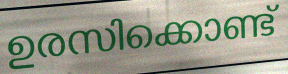
ഉരസിക്കൊണ്ട്